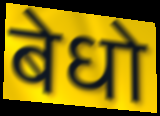
बेधो